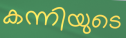
കന്നിയുടെ